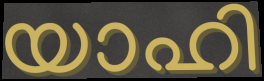
യാഹി